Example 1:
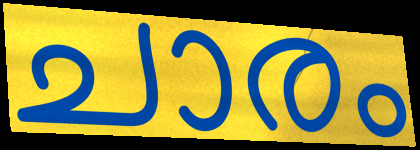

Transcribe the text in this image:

ചാരം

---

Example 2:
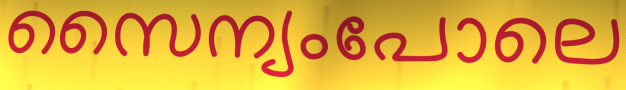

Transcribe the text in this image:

സൈന്യംപോലെ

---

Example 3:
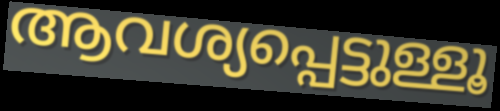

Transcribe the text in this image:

ആവശ്യപ്പെട്ടുള്ളൂ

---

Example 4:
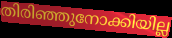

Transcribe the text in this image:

തിരിഞ്ഞുനോക്കിയില്ല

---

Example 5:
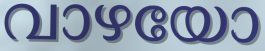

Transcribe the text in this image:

വാഴയോ